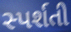
સ્પર્શતી